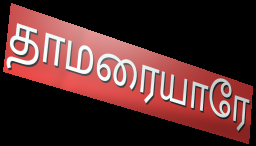
தாமரையாரே